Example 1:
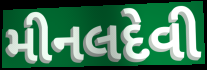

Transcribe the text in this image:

મીનલદેવી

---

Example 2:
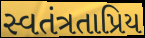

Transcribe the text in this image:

સ્વતંત્રતાપ્રિય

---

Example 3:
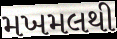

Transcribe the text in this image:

મખમલથી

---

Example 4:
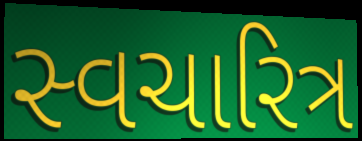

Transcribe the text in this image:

સ્વચારિત્ર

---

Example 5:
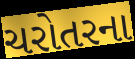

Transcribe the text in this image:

ચરોતરના